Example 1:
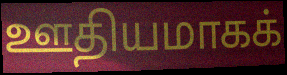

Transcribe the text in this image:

ஊதியமாகக்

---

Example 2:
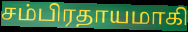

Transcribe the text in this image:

சம்பிரதாயமாகி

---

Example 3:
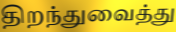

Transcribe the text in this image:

திறந்துவைத்து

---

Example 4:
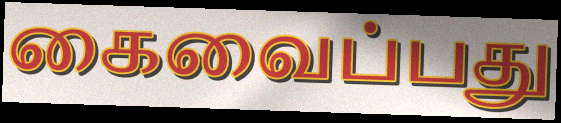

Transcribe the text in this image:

கைவைப்பது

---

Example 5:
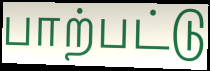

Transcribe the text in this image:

பாற்பட்டு